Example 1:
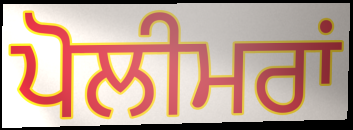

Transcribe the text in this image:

ਪੋਲੀਮਰਾਂ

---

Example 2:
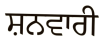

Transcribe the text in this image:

ਸ਼ਨਵਾਰੀ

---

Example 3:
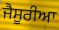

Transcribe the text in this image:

ਜੈਸੂਰੀਆ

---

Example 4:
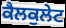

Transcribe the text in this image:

ਕੈਲਕੁਲੇਟ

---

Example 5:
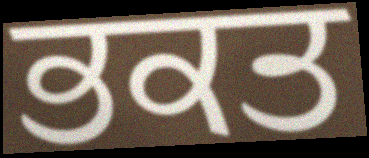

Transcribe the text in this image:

ਭਕਤ